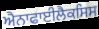
ਐਨਾਫਾਈਲੈਕਸਿਸ